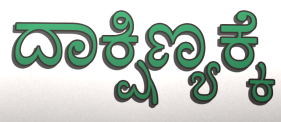
ದಾಕ್ಷಿಣ್ಯಕ್ಕೆ